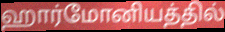
ஹார்மோனியத்தில்